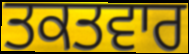
ਤਕਤਵਾਰ